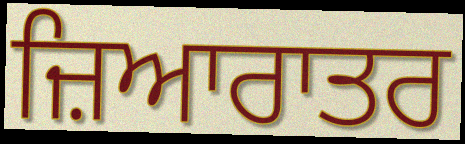
ਜ਼ਿਆਰਾਤਰ